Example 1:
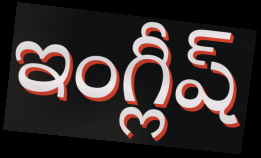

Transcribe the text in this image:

ఇంగ్లీష్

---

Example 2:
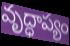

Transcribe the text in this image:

వృద్ధాప్యం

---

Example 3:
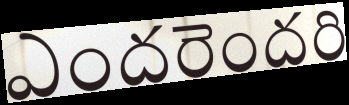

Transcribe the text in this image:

ఎందరెందరి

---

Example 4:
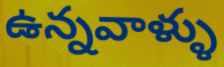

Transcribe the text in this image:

ఉన్నవాళ్ళు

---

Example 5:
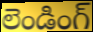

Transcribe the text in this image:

లెండింగ్